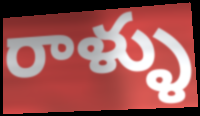
రాళ్ళు